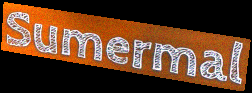
Sumermal